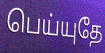
பெய்யுதே